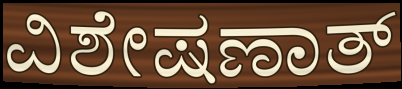
ವಿಶೇಷಣಾತ್